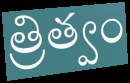
త్రిత్వం